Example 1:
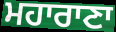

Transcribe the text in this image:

ਮਹਾਰਾਣਾ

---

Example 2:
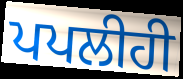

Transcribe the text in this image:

ਪਪਲੀਹੀ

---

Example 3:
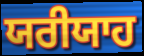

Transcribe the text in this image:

ਯਰੀਯਾਹ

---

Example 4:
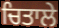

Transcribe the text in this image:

ਚਿਤਾਲੇ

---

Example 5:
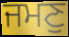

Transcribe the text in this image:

ਜਮਣੁ